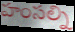
హంసల్ని